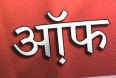
ऑ़फ